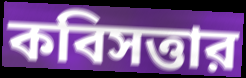
কবিসত্তার